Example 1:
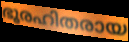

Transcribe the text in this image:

ഭൂരഹിതരായ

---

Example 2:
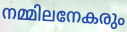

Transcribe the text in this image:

നമ്മിലനേകരും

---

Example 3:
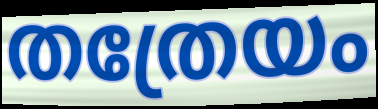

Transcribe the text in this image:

തത്രേയം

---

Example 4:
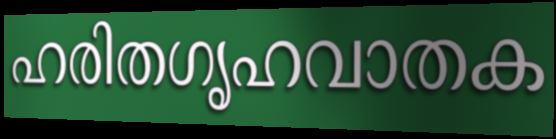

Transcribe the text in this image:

ഹരിതഗൃഹവാതക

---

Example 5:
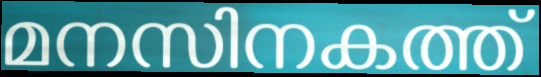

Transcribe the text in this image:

മനസിനകത്ത്